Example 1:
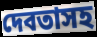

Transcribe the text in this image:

দেবতাসহ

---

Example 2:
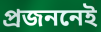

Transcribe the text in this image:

প্রজননেই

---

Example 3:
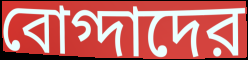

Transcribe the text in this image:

বোগ্দাদের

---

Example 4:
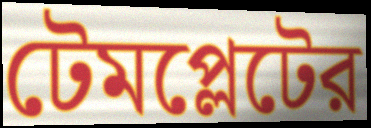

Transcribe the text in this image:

টেমপ্লেটের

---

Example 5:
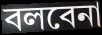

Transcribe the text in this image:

বলবেনা